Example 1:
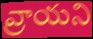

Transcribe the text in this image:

వ్రాయని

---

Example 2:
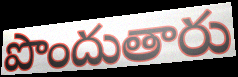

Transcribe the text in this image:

పొందుతారు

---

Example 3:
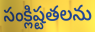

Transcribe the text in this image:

సంక్లిష్టతలను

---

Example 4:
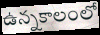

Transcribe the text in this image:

ఉన్నకాలంలో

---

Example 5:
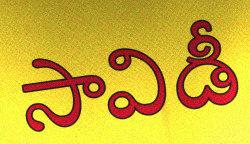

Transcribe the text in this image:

సావిడీ